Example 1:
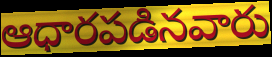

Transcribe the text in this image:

ఆధారపడినవారు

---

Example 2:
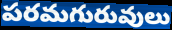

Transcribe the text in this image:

పరమగురువులు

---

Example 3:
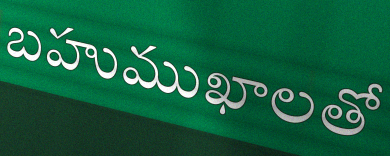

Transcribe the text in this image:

బహుముఖాలతో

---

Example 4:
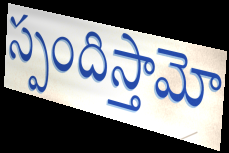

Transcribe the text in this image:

స్పందిస్తామో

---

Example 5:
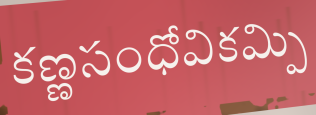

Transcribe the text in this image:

కణ్ణసంధోవికమ్పి